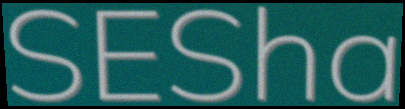
SESha